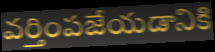
వర్తింపజేయడానికి